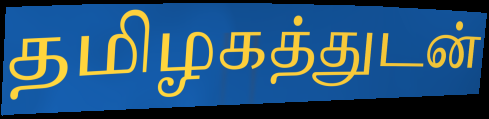
தமிழகத்துடன்